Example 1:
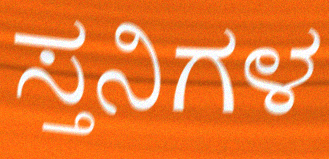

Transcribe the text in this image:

ಸ್ತನಿಗಳ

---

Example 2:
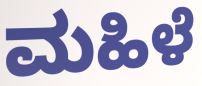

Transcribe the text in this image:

ಮಹಿಳೆ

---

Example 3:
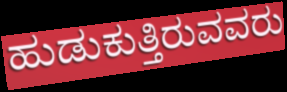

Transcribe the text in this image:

ಹುಡುಕುತ್ತಿರುವವರು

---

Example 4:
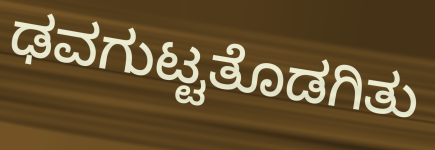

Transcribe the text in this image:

ಢವಗುಟ್ಟತೊಡಗಿತು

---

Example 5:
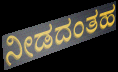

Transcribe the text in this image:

ನೀಡದಂತಹ